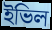
ইভিল